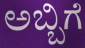
ಅಬ್ಬಿಗೆ